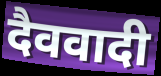
दैववादी